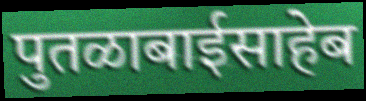
पुतळाबाईसाहेब